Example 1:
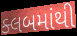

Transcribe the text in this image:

ક્લબમાંથી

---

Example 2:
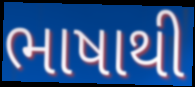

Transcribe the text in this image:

ભાષાથી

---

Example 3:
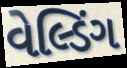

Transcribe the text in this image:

વેલ્ડિંગ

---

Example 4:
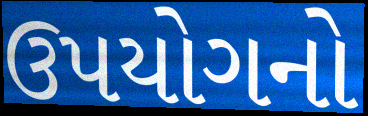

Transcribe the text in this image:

ઉપયોગનો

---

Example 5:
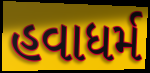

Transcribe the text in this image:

હવાધર્મ